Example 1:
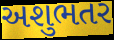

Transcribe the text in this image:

અશુભતર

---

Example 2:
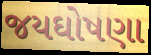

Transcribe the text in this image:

જયઘોષણા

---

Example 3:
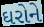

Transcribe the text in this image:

ઘરોને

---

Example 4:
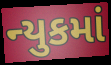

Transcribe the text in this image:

ન્યુકમાં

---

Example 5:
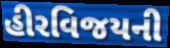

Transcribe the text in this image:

હીરવિજયની